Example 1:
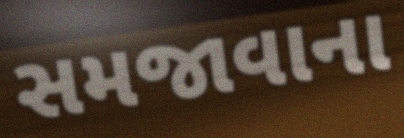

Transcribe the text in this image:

સમજાવાના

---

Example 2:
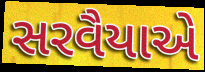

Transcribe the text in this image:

સરવૈયાએ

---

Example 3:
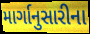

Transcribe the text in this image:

માર્ગાનુસારીના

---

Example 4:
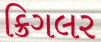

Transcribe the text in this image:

ક્રિગલર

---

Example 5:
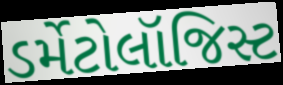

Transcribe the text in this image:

ડર્મેટોલૉજિસ્ટ